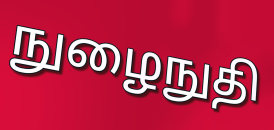
நுழைநுதி